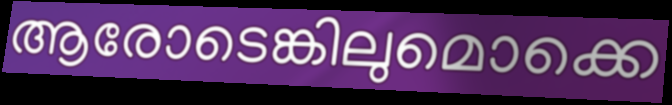
ആരോടെങ്കിലുമൊക്കെ